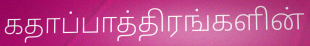
கதாப்பாத்திரங்களின்